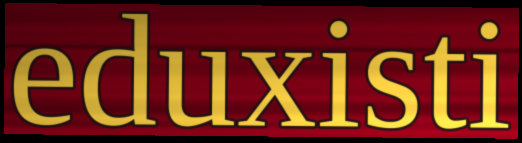
eduxisti